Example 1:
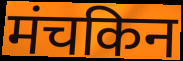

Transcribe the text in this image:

मंचकिन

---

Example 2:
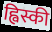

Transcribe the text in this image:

ह्विस्की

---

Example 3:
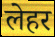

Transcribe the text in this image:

लेहर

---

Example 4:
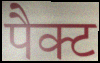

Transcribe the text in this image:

पैक्ट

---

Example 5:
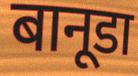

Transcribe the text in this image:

बानूडा